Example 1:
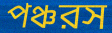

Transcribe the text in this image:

পঞ্চরস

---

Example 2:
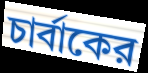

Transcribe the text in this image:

চার্বাকের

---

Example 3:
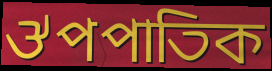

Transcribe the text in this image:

ঔপপাতিক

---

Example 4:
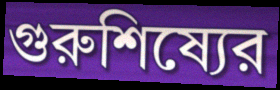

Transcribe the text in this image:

গুরুশিষ্যের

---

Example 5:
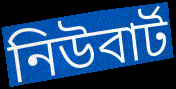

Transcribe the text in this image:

নিউবার্ট